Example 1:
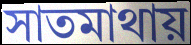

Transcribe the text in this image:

সাতমাথায়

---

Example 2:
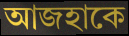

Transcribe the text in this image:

আজহাকে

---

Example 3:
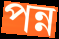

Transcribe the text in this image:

পন্ন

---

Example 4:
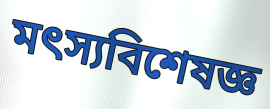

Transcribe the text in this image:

মৎস্যবিশেষজ্ঞ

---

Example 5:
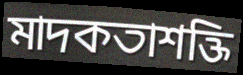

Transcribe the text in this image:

মাদকতাশক্তি